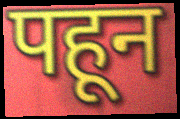
पहून